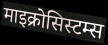
माइक्रोसिस्टम्स